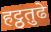
हट्ठतुढे